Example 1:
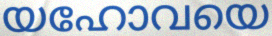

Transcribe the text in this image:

യഹോവയെ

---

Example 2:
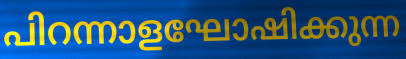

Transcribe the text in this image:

പിറന്നാളഘോഷിക്കുന്ന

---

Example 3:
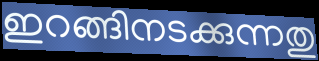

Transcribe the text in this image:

ഇറങ്ങിനടക്കുന്നതു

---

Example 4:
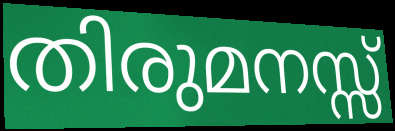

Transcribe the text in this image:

തിരുമനസ്സ്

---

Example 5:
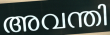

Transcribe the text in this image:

അവന്തി